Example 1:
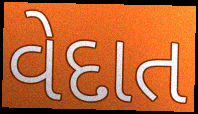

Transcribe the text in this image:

વેદાત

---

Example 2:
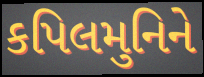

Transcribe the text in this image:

કપિલમુનિને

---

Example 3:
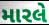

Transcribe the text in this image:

મારલે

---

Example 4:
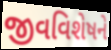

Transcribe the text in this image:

જીવવિશેષને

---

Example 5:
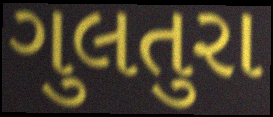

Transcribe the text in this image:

ગુલતુરા